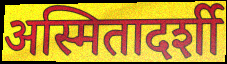
अस्मितादर्शी